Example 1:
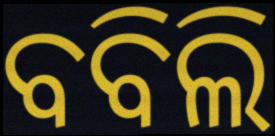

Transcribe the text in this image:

ବବିଲି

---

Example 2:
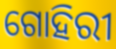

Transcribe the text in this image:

ଗୋହିରୀ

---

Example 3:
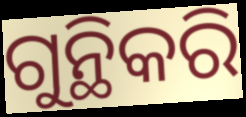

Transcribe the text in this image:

ଗୁନ୍ଥିକରି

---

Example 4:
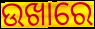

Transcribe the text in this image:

ଉଖାରେ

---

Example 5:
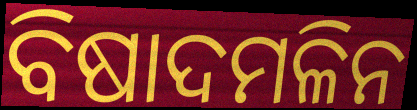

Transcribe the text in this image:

ବିଷାଦମଳିନ